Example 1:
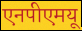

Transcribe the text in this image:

एनपीएमयू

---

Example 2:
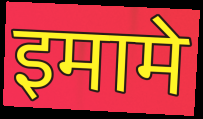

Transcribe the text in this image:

इमामे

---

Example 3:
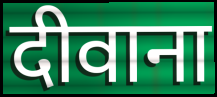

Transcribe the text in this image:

दीवाना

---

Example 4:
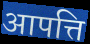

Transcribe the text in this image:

आपत्ति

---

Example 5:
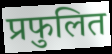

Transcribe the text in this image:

प्रफुलित